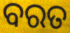
ବରତ